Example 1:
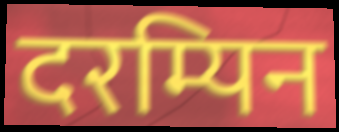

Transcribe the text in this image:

दरम्यिन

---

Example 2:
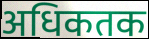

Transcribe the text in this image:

अधिकतक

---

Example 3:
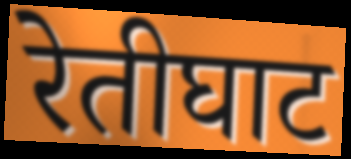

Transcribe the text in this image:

रेतीघाट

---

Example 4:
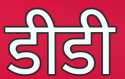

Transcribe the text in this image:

डीडी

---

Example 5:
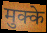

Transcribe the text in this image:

मुक्‍के